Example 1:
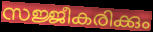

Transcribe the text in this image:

സജ്ജീകരിക്കും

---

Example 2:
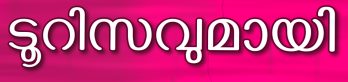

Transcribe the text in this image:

ടൂറിസവുമായി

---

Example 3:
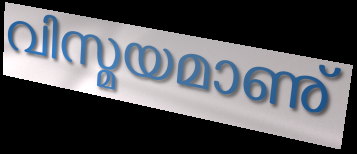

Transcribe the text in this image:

വിസ്മയമാണു്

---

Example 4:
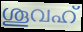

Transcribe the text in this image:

ശൂവഹ്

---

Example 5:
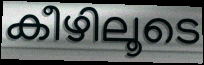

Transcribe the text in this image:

കീഴിലൂടെ